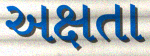
અક્ષતા